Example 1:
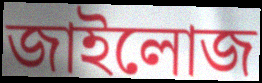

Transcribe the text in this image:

জাইলোজ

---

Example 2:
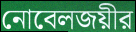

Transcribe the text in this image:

নোবেলজয়ীর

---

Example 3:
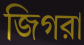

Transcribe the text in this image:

জিগরা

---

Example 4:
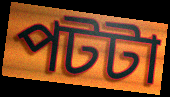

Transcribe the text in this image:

পটটা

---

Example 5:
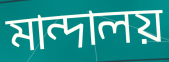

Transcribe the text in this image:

মান্দালয়